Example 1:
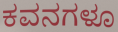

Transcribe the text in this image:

ಕವನಗಳೂ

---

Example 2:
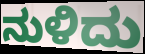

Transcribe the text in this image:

ನುಳಿದು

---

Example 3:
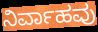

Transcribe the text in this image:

ನಿರ್ವಾಹವು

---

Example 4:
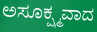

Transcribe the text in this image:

ಅಸೂಕ್ಷ್ಮವಾದ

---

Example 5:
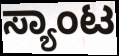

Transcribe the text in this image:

ಸ್ಯಾಂಟ